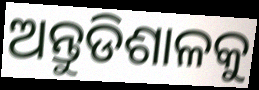
ଅନ୍ତୁଡିଶାଳକୁ